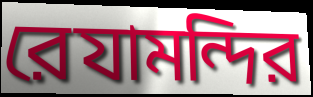
রেযামন্দির